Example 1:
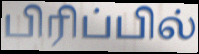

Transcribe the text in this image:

பிரிப்பில்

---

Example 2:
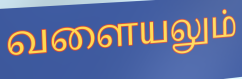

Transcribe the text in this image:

வளையலும்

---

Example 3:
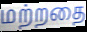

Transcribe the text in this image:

மற்றதை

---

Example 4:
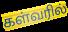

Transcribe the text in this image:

கள்வரில்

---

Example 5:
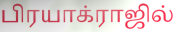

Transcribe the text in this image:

பிரயாக்ராஜில்